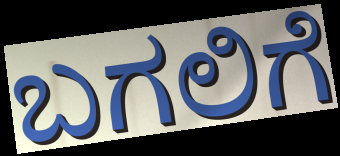
ಬಗಲಿಗೆ